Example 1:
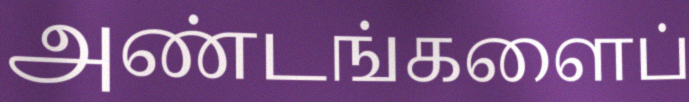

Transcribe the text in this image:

அண்டங்களைப்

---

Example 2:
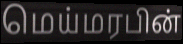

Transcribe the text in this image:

மெய்மரபின்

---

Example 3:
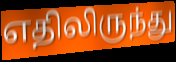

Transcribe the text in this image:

எதிலிருந்து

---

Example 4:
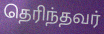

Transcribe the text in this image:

தெரிந்தவர்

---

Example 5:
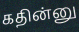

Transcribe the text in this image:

கதின்னு